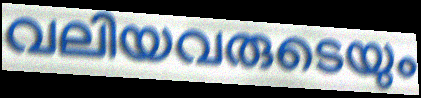
വലിയവരുടെയും